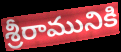
శ్రీరామునికి